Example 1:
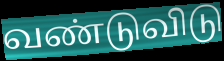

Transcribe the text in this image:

வண்டுவிடு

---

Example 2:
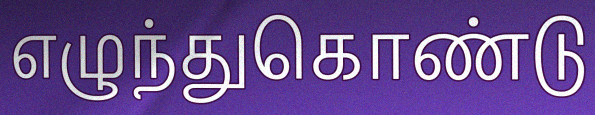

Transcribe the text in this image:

எழுந்துகொண்டு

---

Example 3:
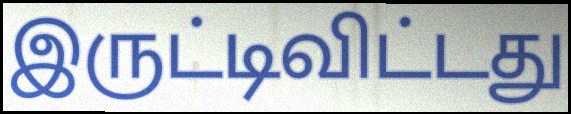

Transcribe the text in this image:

இருட்டிவிட்டது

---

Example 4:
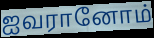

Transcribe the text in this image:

ஐவரானோம்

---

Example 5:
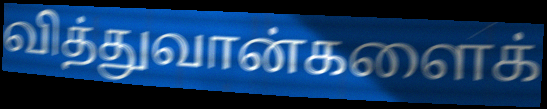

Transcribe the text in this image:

வித்துவான்களைக்